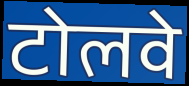
टोलवे